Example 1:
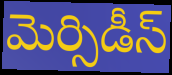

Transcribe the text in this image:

మెర్సిడీస్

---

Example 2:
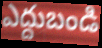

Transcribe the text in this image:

ఎద్దుబండి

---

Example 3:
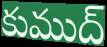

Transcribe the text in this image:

కుముద్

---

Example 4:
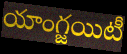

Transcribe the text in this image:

యాంగ్జయిటీ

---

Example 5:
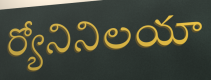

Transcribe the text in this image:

ర్యోనినిలయా